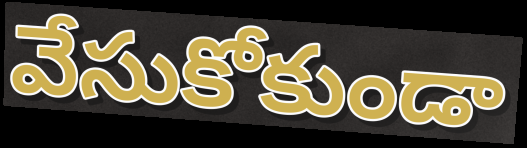
వేసుకోకుండా